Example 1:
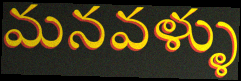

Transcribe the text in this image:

మనవళ్ళు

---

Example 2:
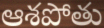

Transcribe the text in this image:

ఆశపోతు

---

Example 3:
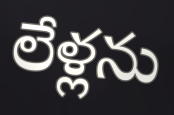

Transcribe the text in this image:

లేళ్లను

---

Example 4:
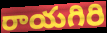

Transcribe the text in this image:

రాయగిరి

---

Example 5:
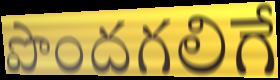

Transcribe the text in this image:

పొందగలిగే